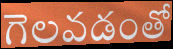
గెలవడంతో